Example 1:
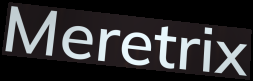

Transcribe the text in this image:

Meretrix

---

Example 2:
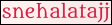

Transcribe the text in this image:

snehalatajj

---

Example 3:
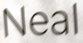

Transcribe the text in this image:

Neal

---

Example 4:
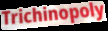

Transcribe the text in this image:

Trichinopoly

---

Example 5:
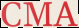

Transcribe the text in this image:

CMA